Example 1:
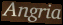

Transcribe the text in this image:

Angria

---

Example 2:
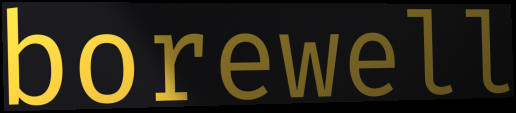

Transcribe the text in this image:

borewell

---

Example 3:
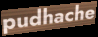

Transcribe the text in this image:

pudhache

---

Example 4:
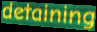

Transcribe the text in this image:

detaining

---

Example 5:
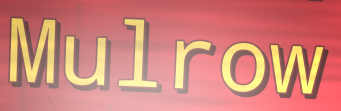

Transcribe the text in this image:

Mulrow